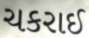
ચકરાઈ